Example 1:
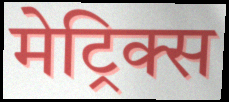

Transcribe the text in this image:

मेट्रिक्‍स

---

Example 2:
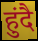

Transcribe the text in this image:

हुंदै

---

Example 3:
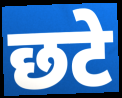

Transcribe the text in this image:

छटे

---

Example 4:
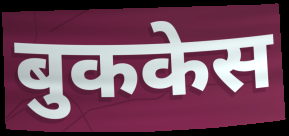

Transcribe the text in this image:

बुककेस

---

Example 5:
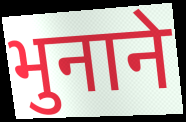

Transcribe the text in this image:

भुनाने